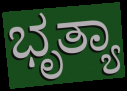
ಭೃತ್ಯಾ